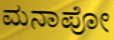
ಮನಾಪೋ